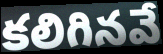
కలిగినవే